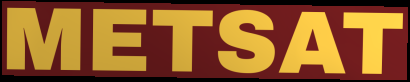
METSAT